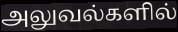
அலுவல்களில்